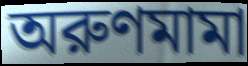
অরুণমামা